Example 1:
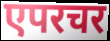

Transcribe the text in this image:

एपरचर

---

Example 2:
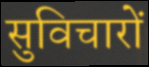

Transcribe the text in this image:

सुविचारों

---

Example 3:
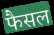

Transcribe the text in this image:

फैसल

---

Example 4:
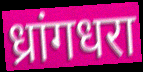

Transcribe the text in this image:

ध्रांगधरा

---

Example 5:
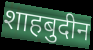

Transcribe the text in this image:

शाहबुदीन